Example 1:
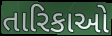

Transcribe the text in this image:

તારિકાઓ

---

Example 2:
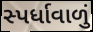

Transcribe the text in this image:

સ્પર્ધાવાળું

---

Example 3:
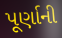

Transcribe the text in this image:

પૂર્ણાની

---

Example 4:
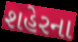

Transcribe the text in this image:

શહેરના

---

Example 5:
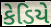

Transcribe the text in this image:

કેડિયે